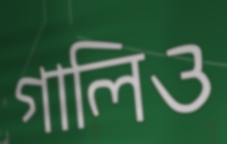
গালিও